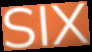
SIX